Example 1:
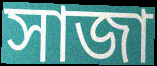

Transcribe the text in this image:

সাজা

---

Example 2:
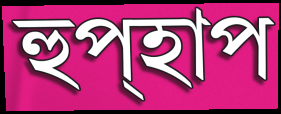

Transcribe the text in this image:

হুপ্হাপ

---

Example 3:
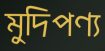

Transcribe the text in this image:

মুদিপণ্য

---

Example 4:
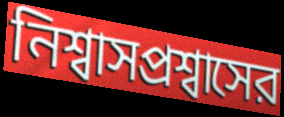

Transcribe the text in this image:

নিশ্বাসপ্রশ্বাসের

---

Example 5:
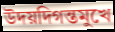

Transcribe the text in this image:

উদয়দিগন্তমুখে